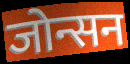
जोन्सन